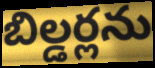
బిల్డర్లను